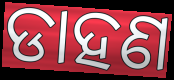
ଡାହଣ